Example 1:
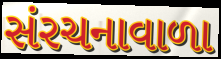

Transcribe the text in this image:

સંરચનાવાળા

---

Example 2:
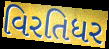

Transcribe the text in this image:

વિરતિધર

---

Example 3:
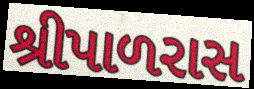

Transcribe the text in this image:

શ્રીપાળરાસ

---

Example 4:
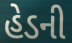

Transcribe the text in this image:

હેડની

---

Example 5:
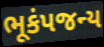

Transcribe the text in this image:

ભૂકંપજન્ય